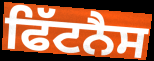
ਫਿੱਟਨੈਸ